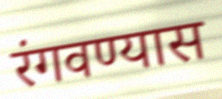
रंगवण्यास